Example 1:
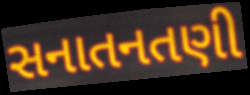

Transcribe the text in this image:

સનાતનતણી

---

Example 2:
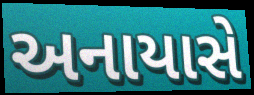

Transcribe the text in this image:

અનાયાસે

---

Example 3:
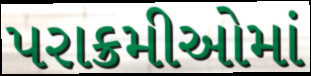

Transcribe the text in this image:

પરાક્રમીઓમાં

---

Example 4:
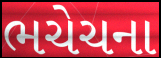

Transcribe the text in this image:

ભચેચના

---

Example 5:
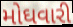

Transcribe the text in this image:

મોઘવારી